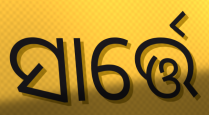
ସାର୍ତ୍ତେ